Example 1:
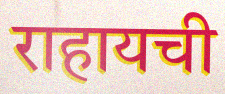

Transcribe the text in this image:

राहायची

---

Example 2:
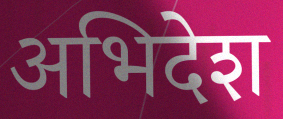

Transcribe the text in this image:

अभिदेश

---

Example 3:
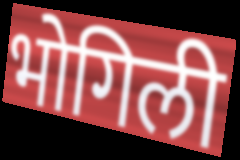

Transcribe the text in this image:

भोगिली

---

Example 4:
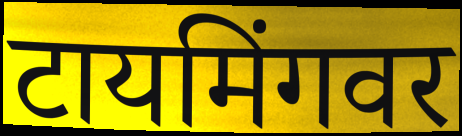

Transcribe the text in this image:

टायमिंगवर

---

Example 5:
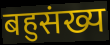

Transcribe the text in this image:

बहुसंख्य